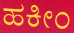
ಹಕೀಂ